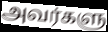
அவர்களு